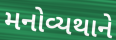
મનોવ્યથાને